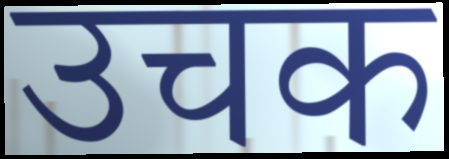
उचक